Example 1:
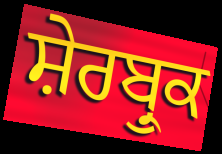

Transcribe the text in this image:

ਸ਼ੇਰਬ੍ਰੁਕ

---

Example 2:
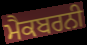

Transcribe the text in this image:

ਮੈਕਬਰਨੀ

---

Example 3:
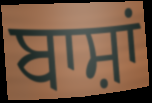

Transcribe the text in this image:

ਬਾਸ਼ਾਂ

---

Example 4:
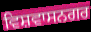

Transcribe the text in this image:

ਵਿਸ਼ਵਾਸਨਗਰ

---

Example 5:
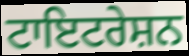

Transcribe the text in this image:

ਟਾਇਟਰੇਸ਼ਨ